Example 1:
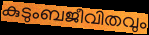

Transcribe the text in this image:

കുടുംബജീവിതവും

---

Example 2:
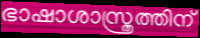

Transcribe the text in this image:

ഭാഷാശാസ്ത്രത്തിന്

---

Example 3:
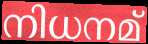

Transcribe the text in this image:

നിധനമ്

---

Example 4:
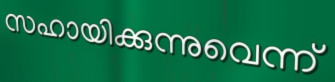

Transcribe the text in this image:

സഹായിക്കുന്നുവെന്ന്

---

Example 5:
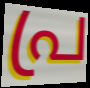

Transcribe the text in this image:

പ്ര